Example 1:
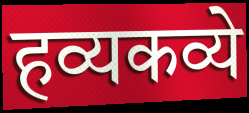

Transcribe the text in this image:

हव्यकव्ये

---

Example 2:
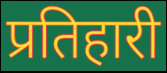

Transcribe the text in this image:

प्रतिहारी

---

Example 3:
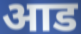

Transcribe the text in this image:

आड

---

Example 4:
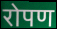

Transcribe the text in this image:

रोपण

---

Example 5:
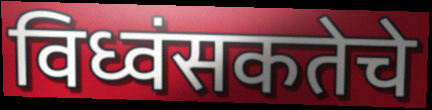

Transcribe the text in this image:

विध्वंसकतेचे